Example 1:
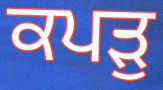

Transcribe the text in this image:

ਕਪੜੁ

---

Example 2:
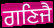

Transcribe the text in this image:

ਗਣਿਜੈ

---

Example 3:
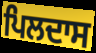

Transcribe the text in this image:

ਪਿਲਦਾਸ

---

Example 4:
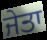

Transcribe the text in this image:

ਜੇਤਾ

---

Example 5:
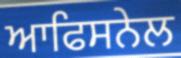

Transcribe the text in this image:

ਆਫਿਸਨੇਲ